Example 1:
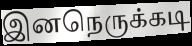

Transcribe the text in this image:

இனநெருக்கடி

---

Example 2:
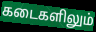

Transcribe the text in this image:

கடைகளிலும்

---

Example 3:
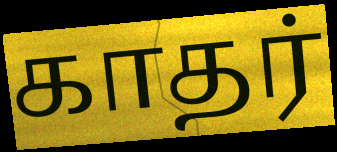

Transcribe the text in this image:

காதர்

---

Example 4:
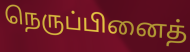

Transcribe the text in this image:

நெருப்பினைத்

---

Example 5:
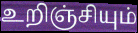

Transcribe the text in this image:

உறிஞ்சியும்